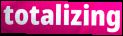
totalizing